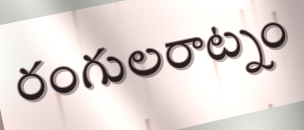
రంగులరాట్నం